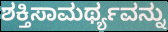
ಶಕ್ತಿಸಾಮರ್ಥ್ಯವನ್ನು